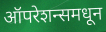
ऑपरेशन्समधून